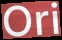
Ori